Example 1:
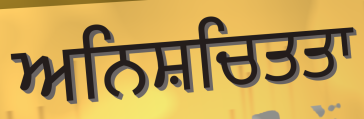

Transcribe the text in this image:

ਅਨਿਸ਼ਚਿਤਤਾ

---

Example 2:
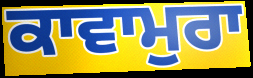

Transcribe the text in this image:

ਕਾਵਾਮੁਰਾ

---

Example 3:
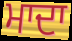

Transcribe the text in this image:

ਮਾਦਾ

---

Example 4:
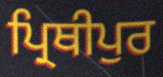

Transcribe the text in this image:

ਪ੍ਰਿਥੀਪੁਰ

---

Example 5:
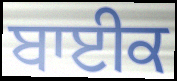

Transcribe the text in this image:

ਬਾਈਕ